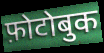
फ़ोटोबुक